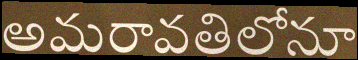
అమరావతిలోనూ